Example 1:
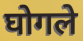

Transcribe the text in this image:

घोगले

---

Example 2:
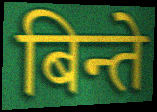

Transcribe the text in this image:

बिन्ते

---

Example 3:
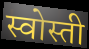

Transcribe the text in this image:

स्वोस्ती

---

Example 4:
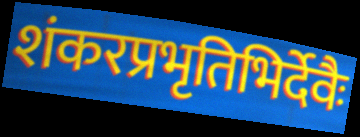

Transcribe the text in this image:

शंकरप्रभृतिभिर्देवैः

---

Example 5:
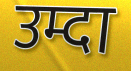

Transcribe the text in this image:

उम्‍दा